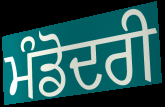
ਮੰਡੋਦਰੀ